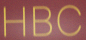
HBC